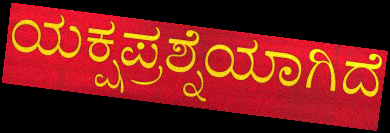
ಯಕ್ಷಪ್ರಶ್ನೆಯಾಗಿದೆ